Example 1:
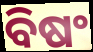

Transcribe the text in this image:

ବିଷଂ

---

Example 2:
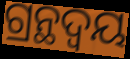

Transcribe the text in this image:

ଗ୍ରନ୍ଥଦ୍ଵୟ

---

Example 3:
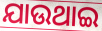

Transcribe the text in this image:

ଯାଉଥାଇ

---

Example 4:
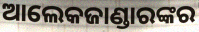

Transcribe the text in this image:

ଆଲେକଜାଣ୍ଡାରଙ୍କର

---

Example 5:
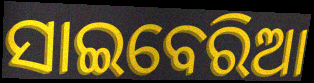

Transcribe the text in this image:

ସାଇବେରିଆ